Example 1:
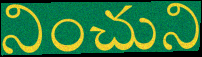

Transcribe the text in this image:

నించుని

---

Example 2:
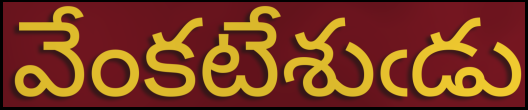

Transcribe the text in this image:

వేంకటేశుఁడు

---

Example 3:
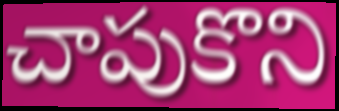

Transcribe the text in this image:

చాపుకొని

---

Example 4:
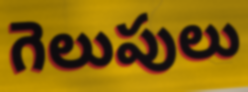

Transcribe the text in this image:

గెలుపులు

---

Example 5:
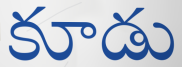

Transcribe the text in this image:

కూడు